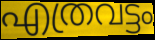
എത്രവട്ടം